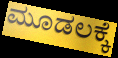
ಮೂಡಲಕ್ಕೆ